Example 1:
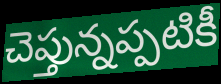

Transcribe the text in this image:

చెప్తున్నప్పటికీ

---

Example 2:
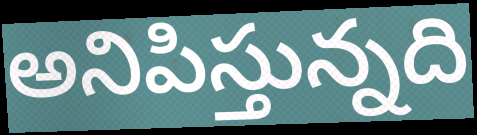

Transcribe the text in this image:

అనిపిస్తున్నది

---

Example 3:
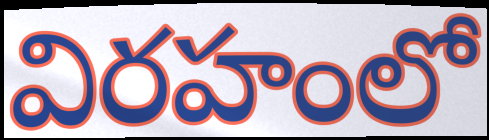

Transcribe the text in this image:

విరహంలో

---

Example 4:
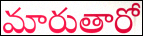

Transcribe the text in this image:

మారుతారో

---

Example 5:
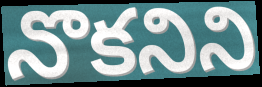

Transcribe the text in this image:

నొకనిని